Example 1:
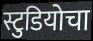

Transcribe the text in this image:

स्टुडियोचा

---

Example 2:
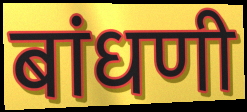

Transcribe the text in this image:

बांधणी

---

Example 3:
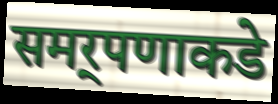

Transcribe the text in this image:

समर्पणाकडे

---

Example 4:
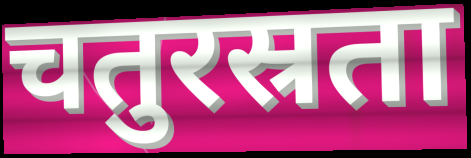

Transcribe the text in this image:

चतुरस्रता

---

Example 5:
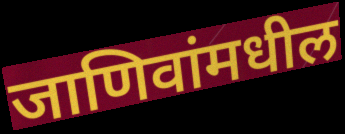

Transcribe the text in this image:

जाणिवांमधील